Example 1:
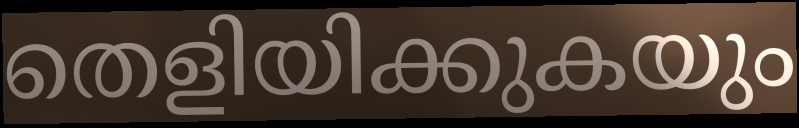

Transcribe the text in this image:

തെളിയിക്കുകയും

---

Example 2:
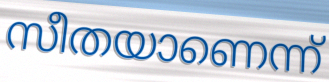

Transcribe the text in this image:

സീതയാണെന്ന്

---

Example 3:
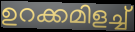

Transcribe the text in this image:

ഉറക്കമിളച്ച്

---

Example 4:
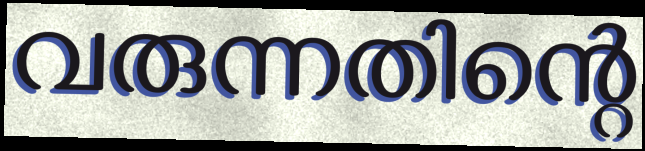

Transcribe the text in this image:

വരുന്നതിന്റെ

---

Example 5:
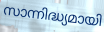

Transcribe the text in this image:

സാന്നിദ്ധ്യമായി